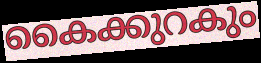
കൈക്കുറകും